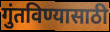
गुंतविण्यासाठी